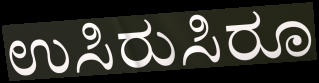
ಉಸಿರುಸಿರೂ